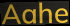
Aahe